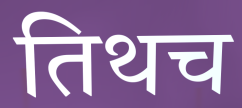
तिथच